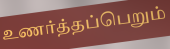
உணர்த்தப்பெறும்